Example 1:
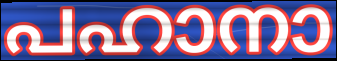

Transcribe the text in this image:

പഹാനാ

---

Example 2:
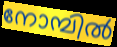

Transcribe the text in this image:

നോമ്പിൽ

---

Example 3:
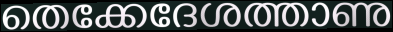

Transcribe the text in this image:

തെക്കേദേശത്താണു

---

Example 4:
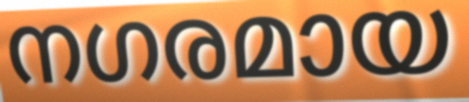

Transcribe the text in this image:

നഗരമായ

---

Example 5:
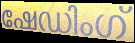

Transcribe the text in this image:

ഷേഡിംഗ്